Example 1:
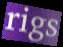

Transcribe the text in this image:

rigs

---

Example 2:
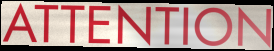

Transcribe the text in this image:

ATTENTION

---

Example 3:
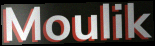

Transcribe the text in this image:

Moulik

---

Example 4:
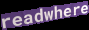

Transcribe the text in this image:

readwhere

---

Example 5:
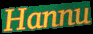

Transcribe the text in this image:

Hannu